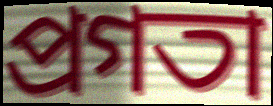
প্রগতা